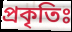
প্রকৃতিঃ